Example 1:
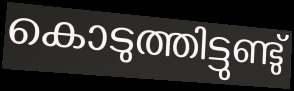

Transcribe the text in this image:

കൊടുത്തിട്ടുണ്ടു്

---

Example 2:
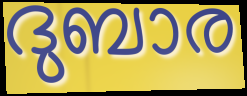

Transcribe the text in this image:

ദുബാര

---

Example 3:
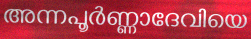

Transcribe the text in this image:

അന്നപൂർണ്ണാദേവിയെ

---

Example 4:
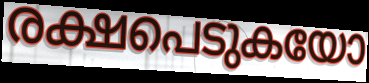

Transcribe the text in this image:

രക്ഷപെടുകയോ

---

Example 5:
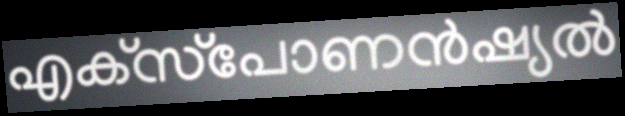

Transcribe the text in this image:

എക്‌സ്‌പോണൻഷ്യൽ